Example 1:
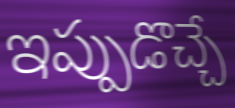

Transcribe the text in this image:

ఇప్పుడొచ్చే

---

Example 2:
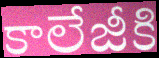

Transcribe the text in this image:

కాలేజీకి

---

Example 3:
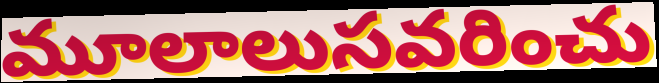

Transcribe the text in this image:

మూలాలుసవరించు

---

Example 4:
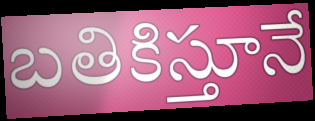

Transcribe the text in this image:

బతికిస్తూనే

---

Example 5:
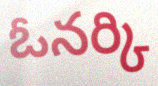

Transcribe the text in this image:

ఓనర్కి